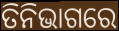
ତିନିଭାଗରେ